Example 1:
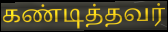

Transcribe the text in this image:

கண்டித்தவர்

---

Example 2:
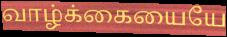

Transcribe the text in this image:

வாழ்க்கையையே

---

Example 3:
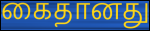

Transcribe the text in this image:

கைதானது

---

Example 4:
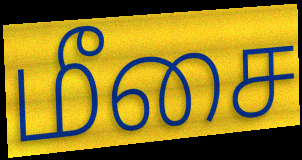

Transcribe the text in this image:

மீசை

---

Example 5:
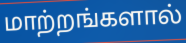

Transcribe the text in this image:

மாற்றங்களால்